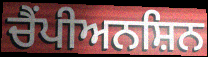
ਚੈਂਪੀਅਨਸ਼ਿਨ